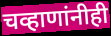
चव्हाणांनीही